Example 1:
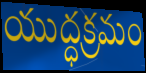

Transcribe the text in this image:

యుద్ధక్రమం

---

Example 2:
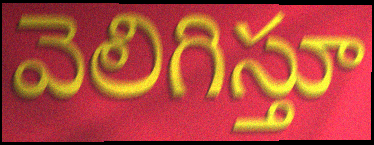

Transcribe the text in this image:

వెలిగిస్తూ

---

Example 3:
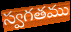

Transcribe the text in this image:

స్వగతము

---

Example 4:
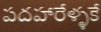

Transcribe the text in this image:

పదహారేళ్ళకే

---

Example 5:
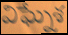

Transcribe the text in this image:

విఘ్నేశ